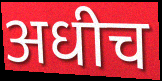
अधीच